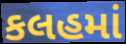
કલહમાં